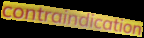
contraindication